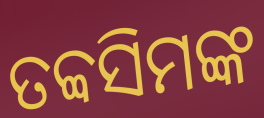
ତବ୍ବସିମଙ୍କ